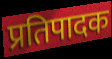
प्रतिपादक